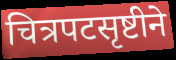
चित्रपटसृष्टीने